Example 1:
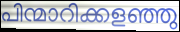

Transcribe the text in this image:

പിന്മാറിക്കളഞ്ഞു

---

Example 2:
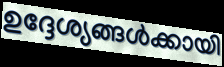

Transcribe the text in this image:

ഉദ്ദേശ്യങ്ങൾക്കായി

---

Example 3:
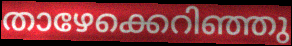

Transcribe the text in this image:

താഴേക്കെറിഞ്ഞു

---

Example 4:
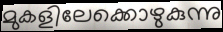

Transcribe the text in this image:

മുകളിലേക്കൊഴുകുന്നു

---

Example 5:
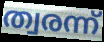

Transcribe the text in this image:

ത്വരന്ന്